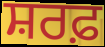
ਸ਼ਰਫ਼